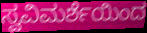
ಸ್ವವಿಮರ್ಶೆಯಿಂದ